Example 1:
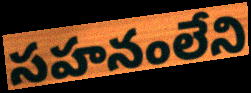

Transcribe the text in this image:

సహనంలేని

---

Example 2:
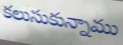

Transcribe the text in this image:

కలుసుకున్నాము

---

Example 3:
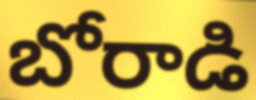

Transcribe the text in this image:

బోరాడి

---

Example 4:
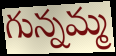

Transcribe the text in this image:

గున్నమ్మ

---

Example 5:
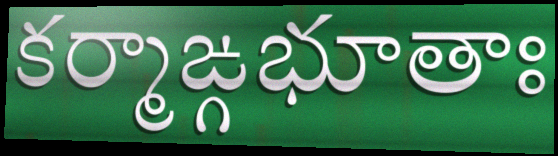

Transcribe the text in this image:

కర్మాఙ్గభూతాః